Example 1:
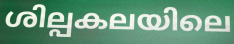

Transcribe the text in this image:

ശില്പകലയിലെ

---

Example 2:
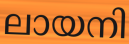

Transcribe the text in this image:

ലായനി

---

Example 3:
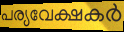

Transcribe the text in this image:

പര്യവേക്ഷകർ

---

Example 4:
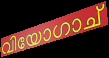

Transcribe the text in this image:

വിയോഗാച്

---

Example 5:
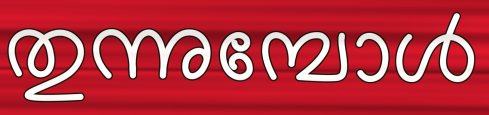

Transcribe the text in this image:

തുന്നുമ്പോൾ